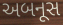
અબનૂસ